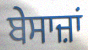
ਬੇਸਾਜ਼ਾਂ